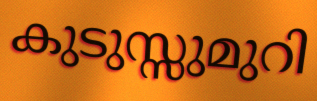
കുടുസ്സുമുറി